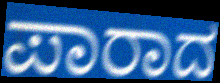
ಪಾರಾದ